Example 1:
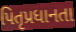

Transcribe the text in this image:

પિતૃપ્રધાનતા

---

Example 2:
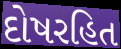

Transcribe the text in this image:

દોષરહિત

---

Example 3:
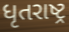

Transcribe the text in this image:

ધૃતરાષ્ટ્ર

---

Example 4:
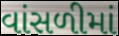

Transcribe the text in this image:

વાંસળીમાં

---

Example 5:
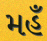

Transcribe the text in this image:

મહઁ